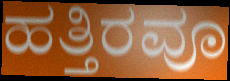
ಹತ್ತಿರವೂ